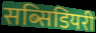
सब्सिडियरी